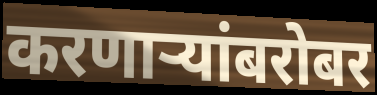
करणार्‍यांबरोबर